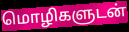
மொழிகளுடன்